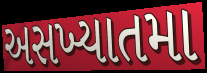
અસખ્યાતમા